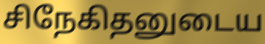
சிநேகிதனுடைய